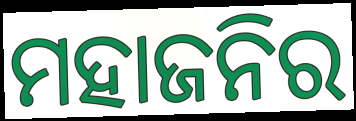
ମହାଜନିର